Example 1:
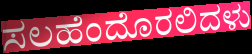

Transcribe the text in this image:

ಸಲಹೆಂದೊರಲಿದಳು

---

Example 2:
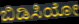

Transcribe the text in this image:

ಬಿಡಿಸಿಯೋ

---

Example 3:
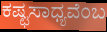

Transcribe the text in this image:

ಕಷ್ಟಸಾಧ್ಯವೆಂಬ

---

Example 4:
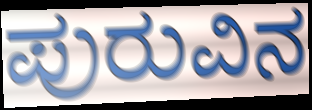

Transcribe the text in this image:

ಪುರುವಿನ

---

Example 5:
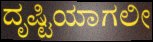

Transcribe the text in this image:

ದೃಷ್ಟಿಯಾಗಲೀ